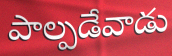
పాల్పడేవాడు